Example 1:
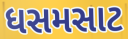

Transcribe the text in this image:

ધસમસાટ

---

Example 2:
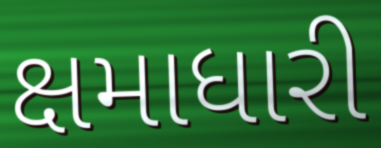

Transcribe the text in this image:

ક્ષમાધારી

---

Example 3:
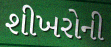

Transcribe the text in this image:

શીખરોની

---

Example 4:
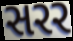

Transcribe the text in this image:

સરર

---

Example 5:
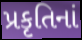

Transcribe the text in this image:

પ્રકૃતિનાં